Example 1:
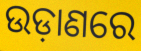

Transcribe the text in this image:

ଉଡ଼ାଣରେ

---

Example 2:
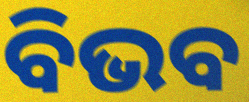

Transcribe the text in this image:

ବିଭବ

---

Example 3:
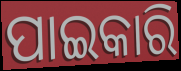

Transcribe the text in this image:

ପାଇକାରି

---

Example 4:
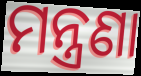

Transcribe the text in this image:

ମନ୍ତ୍ରଣା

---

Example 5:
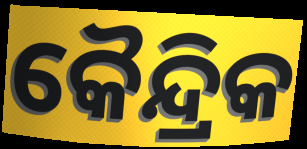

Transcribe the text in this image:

କୈନ୍ଦ୍ରିକ